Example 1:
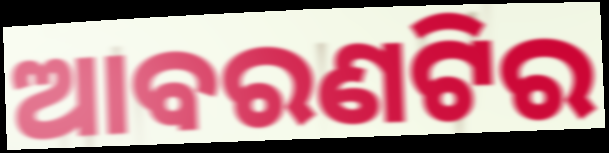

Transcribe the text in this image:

ଆବରଣଟିର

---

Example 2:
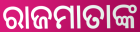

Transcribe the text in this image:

ରାଜମାତାଙ୍କ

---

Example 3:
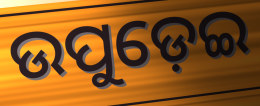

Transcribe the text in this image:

ଉପୁଡ଼େଇ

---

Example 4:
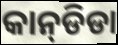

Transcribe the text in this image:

କାନ୍‌ଡିଡା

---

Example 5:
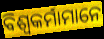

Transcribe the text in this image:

ବିଶ୍ଵକର୍ମାମାନେ